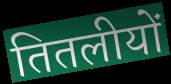
तितलीयों